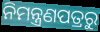
ନିମନ୍ତ୍ରଣପତ୍ରରୁ